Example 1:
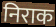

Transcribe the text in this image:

निराक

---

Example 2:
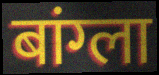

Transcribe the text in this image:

बांग्‍ला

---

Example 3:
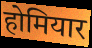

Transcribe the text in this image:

होमियार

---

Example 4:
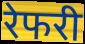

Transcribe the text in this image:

रेफरी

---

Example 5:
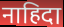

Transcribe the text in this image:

नाहिदा